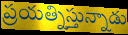
ప్రయత్నిస్తున్నాడు